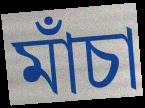
মাঁচা